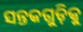
ସନ୍ତକଗୁଡ଼ିକୁ